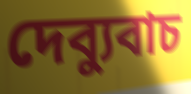
দেব্যুবাচ